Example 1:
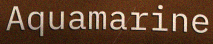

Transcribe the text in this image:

Aquamarine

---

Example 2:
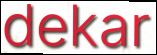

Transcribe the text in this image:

dekar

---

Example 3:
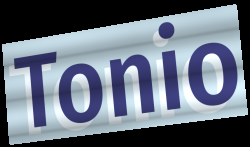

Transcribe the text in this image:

Tonio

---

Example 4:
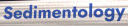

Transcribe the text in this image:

Sedimentology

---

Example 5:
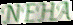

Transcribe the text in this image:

NEHA